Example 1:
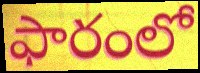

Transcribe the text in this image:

ఫారంలో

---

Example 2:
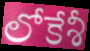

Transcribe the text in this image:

లోకేశీ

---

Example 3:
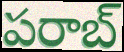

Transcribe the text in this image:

పరాబ్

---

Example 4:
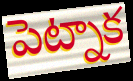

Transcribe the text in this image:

పెట్నాక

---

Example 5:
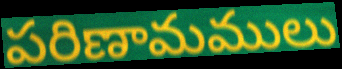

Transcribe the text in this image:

పరిణామములు